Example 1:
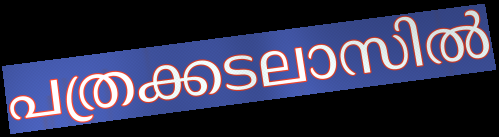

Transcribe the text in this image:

പത്രക്കടലാസിൽ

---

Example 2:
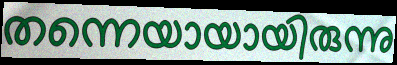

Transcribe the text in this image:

തന്നെയായായിരുന്നു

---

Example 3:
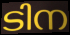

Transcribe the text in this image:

ടിന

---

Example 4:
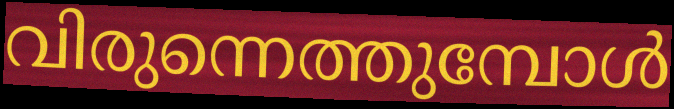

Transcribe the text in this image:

വിരുന്നെത്തുമ്പോൾ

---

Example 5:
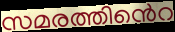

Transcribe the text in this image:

സമരത്തിൻെറ